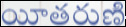
యీతరుణి